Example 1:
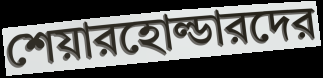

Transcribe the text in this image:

শেয়ারহোল্ডারদের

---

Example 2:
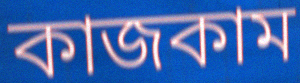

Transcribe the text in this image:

কাজকাম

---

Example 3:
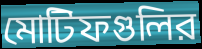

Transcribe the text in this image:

মোটিফগুলির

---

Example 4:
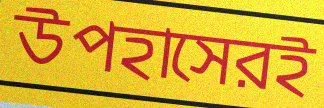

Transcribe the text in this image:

উপহাসেরই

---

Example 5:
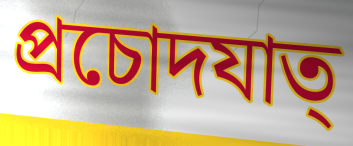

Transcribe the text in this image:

প্রচোদযাত্